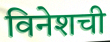
विनेशची